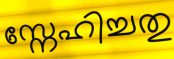
സ്നേഹിച്ചതു